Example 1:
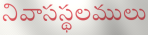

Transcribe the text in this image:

నివాసస్థలములు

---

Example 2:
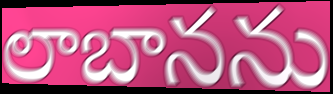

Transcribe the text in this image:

లాబానను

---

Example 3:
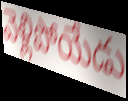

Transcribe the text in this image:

వెళ్లిపోయేడు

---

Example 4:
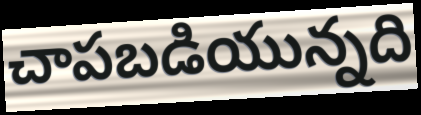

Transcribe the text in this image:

చాపబడియున్నది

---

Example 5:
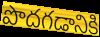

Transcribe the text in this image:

పొదగడానికి